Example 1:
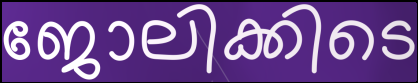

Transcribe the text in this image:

ജോലിക്കിടെ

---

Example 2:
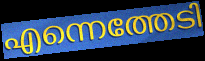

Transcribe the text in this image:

എന്നെത്തേടി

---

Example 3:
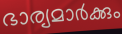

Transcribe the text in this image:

ഭാര്യമാർക്കും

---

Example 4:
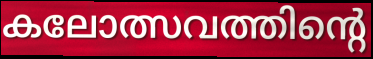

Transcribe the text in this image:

കലോത്സവത്തിന്റെ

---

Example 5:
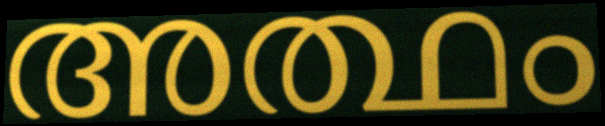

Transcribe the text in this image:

അത്ഥം